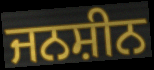
ਜਨਸ਼ੀਨ